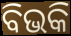
ବିଭକି